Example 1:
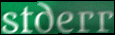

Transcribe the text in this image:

stderr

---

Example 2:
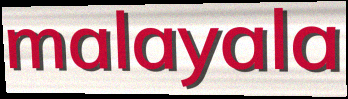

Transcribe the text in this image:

malayala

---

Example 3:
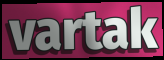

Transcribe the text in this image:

vartak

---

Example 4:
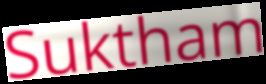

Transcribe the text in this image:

Suktham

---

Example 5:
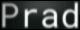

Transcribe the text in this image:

Prad